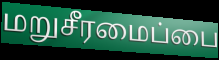
மறுசீரமைப்பை